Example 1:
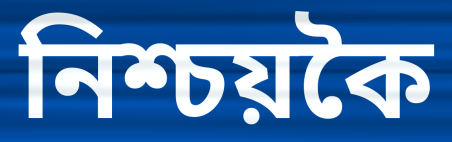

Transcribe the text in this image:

নিশ্চয়কৈ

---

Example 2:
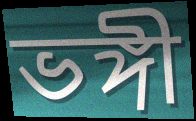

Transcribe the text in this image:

ভঙ্গী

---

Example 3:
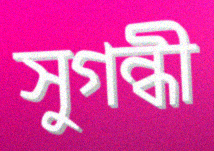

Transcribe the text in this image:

সুগন্ধী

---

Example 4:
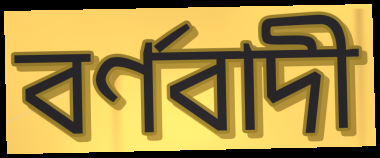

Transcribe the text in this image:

বৰ্ণবাদী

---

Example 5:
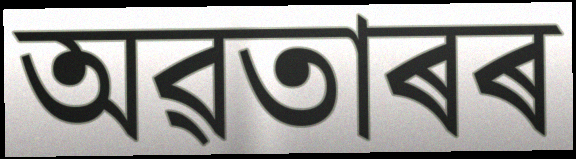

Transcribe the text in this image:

অৱতাৰৰ